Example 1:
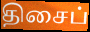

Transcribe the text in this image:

திசைப்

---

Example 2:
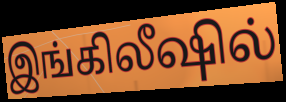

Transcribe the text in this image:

இங்கிலீஷில்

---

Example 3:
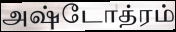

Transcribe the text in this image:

அஷ்டோத்ரம்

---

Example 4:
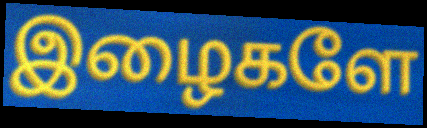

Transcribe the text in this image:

இழைகளே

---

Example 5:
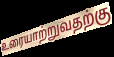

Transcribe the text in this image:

உரையாற்றுவதற்கு